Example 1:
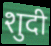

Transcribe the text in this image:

शुदी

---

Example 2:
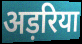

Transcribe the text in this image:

अड़रिया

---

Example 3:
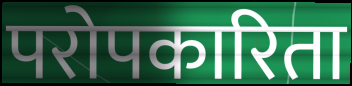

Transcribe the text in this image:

परोपकारिता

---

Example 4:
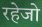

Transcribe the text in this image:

रहेजो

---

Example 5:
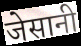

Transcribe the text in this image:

जेसानी